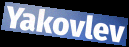
Yakovlev